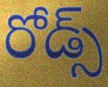
రోడ్స్